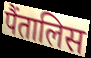
पैंतालिस